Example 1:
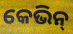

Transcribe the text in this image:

କେଭିନ୍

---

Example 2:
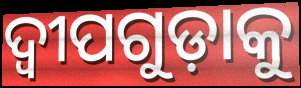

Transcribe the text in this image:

ଦ୍ୱୀପଗୁଡ଼ାକୁ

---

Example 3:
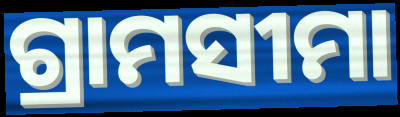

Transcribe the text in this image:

ଗ୍ରାମସୀମା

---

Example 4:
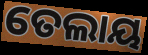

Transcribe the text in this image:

ତେଲାୟ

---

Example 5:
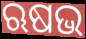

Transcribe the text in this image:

ଋଷଭ